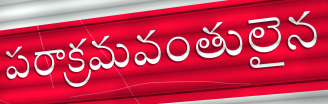
పరాక్రమవంతులైన